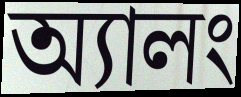
অ্যালং